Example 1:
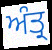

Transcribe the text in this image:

ਅੰਤ੍ਰ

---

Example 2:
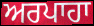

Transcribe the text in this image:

ਅਰਪਾਹਾ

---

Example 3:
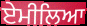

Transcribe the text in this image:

ਏਮੀਲਿਆ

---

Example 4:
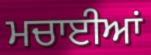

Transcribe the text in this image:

ਮਚਾਈਆਂ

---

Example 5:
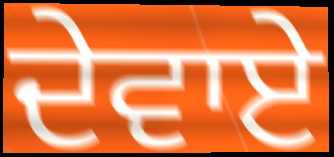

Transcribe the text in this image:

ਦੇਵਾਏ